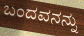
ಬಂದವನನ್ನು